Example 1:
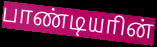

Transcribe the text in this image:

பாண்டியரின்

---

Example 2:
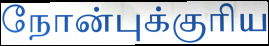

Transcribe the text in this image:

நோன்புக்குரிய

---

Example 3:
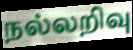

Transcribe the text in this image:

நல்லறிவு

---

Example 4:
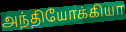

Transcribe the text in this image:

அந்தியோக்கியா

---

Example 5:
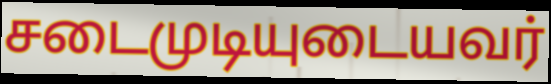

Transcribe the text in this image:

சடைமுடியுடையவர்